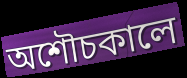
অশৌচকালে